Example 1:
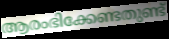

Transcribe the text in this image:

ആരംഭിക്കേണ്ടതുണ്ട്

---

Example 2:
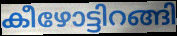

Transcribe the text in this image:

കീഴോട്ടിറങ്ങി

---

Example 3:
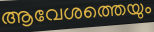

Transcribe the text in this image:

ആവേശത്തെയും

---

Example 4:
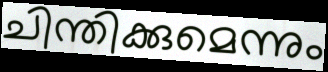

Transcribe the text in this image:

ചിന്തിക്കുമെന്നും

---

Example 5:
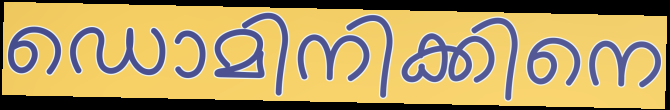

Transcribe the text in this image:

ഡൊമിനിക്കിനെ